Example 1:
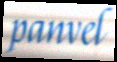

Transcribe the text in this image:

panvel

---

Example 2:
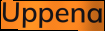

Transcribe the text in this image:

Uppena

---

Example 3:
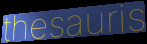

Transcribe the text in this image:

thesauris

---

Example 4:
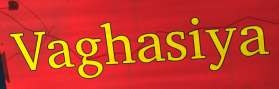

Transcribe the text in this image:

Vaghasiya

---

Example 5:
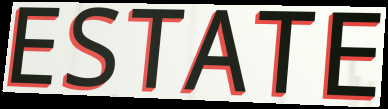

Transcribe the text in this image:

ESTATE